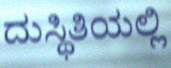
ದುಸ್ಥಿತಿಯಲ್ಲಿ